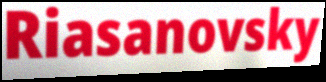
Riasanovsky